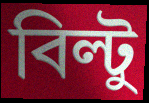
বিল্টু